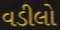
વડીલો